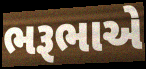
ભરૂભાએ